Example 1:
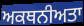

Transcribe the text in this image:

ਅਕਥਨੀਅਤਾ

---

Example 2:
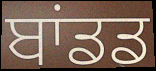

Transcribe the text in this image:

ਬਾਂਡਡ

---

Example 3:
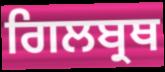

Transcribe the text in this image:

ਗਿਲਬ੍ਰਥ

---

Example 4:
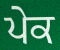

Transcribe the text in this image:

ਪੇਕ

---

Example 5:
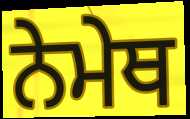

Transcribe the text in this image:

ਨੇਮੇਥ